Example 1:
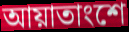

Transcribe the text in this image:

আয়াতাংশে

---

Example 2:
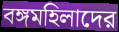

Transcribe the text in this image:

বঙ্গমহিলাদের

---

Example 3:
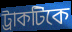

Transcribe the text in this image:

ট্রাকটিকে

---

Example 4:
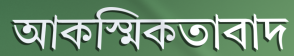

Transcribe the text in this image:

আকস্মিকতাবাদ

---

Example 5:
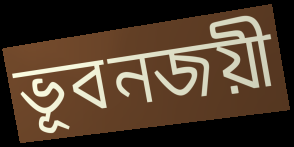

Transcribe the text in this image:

ভূবনজয়ী